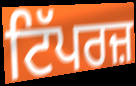
ਟਿੱਪਰਜ਼